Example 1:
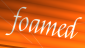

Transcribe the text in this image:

foamed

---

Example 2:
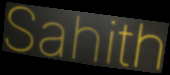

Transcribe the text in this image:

Sahith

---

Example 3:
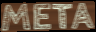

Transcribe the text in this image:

META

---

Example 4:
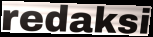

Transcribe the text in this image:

redaksi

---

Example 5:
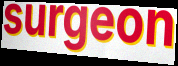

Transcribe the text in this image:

surgeon